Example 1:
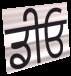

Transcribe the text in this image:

ਡੀਓ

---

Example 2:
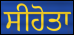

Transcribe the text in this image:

ਸੀਹੋਤਾ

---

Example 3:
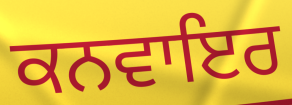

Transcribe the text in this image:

ਕਨਵਾਇਰ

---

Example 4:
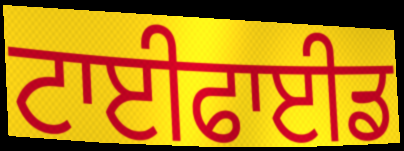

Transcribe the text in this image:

ਟਾਈਫਾਈਡ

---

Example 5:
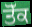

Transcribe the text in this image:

ਤੋੱਕ